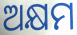
ଅକ୍ଷମ